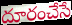
దూరంచేసే